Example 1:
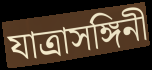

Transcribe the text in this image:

যাত্রাসঙ্গিনী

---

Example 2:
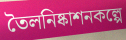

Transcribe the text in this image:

তৈলনিষ্কাশনকল্পে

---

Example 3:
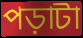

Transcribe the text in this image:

পড়াটা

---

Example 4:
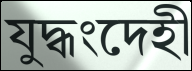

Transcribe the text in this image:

যুদ্ধংদেহী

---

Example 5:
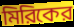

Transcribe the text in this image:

মিরিকের